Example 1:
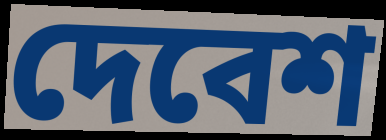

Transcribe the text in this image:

দেবেশ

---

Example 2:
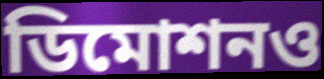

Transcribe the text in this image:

ডিমোশনও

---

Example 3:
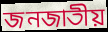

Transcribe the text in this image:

জনজাতীয়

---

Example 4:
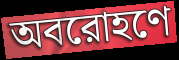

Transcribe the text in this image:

অবরোহণে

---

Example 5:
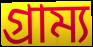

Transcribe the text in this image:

গ্রাম্য